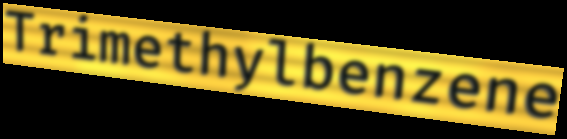
Trimethylbenzene